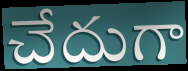
చేదుగా